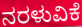
ನರಳುವಿಕೆ